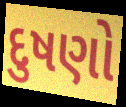
દુષણો